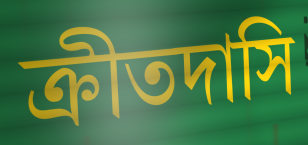
ক্রীতদাসি